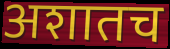
अशातच